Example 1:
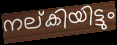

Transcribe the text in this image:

നല്കിയിട്ടും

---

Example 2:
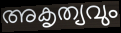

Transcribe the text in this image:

അകൃത്യവും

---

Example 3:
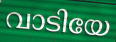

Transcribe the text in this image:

വാടിയേ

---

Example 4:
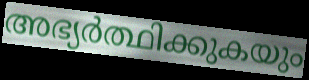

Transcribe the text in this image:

അഭ്യർത്ഥിക്കുകയും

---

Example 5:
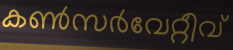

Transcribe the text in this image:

കൺസർവേറ്റീവ്